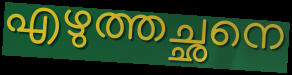
എഴുത്തച്ഛനെ